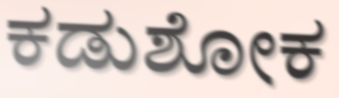
ಕಡುಶೋಕ